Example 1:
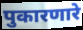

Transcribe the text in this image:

पुकारणारे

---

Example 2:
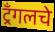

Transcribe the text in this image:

ट्रँगलचे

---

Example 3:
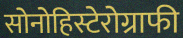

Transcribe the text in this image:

सोनोहिस्टेरोग्राफी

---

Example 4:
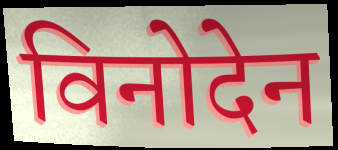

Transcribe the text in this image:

विनोदेन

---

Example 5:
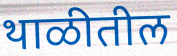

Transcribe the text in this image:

थाळीतील